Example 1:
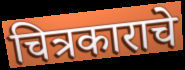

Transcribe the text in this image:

चित्रकाराचे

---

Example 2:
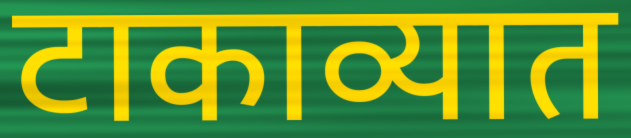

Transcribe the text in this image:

टाकाव्यात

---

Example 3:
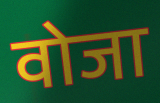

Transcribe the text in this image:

वोजा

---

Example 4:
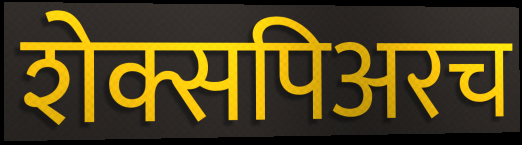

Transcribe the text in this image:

शेक्सपिअरच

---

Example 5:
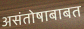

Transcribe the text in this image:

असंतोषाबाबत